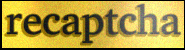
recaptcha